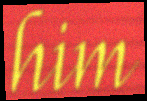
him